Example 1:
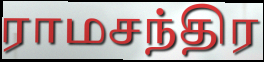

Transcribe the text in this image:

ராமசந்திர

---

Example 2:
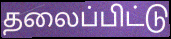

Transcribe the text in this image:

தலைப்பிட்டு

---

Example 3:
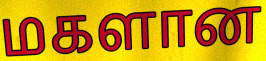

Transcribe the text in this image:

மகளான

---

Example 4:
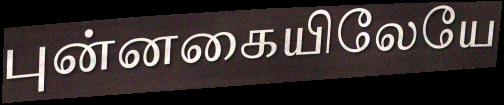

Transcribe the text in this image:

புன்னகையிலேயே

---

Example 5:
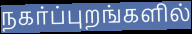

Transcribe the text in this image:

நகர்ப்புறங்களில்